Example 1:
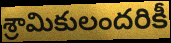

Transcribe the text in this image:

శ్రామికులందరికీ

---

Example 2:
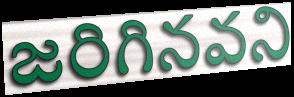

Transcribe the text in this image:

జరిగినవని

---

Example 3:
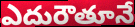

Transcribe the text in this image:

ఎదురౌతూనే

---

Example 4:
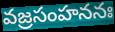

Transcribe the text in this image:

వజ్రసంహననః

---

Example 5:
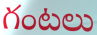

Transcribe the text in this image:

గంటలు